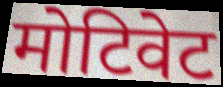
मोटिवेट